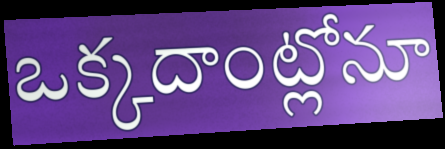
ఒక్కదాంట్లోనూ